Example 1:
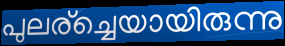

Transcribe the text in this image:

പുലര്ച്ചെയായിരുന്നു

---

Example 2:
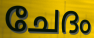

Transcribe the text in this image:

ചേദം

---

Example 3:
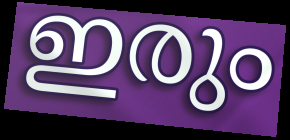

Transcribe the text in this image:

ഇരും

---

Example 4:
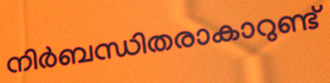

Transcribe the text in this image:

നിർബന്ധിതരാകാറുണ്ട്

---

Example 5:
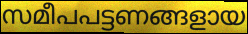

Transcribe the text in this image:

സമീപപട്ടണങ്ങളായ